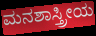
ಮನಶಾಸ್ತ್ರೀಯ